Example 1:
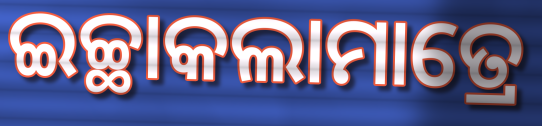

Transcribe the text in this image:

ଇଚ୍ଛାକଲାମାତ୍ରେ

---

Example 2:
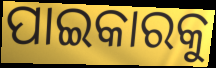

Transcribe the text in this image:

ପାଇକାରକୁ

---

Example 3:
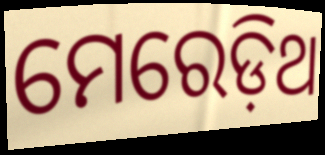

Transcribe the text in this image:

ମେରେଡ଼ିଥ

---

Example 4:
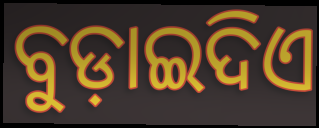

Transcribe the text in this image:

ବୁଡ଼ାଇଦିଏ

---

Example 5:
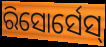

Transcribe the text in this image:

ରିସୋର୍ସେସ୍